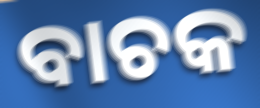
ବାଚକ